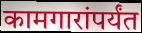
कामगारांपर्यंत